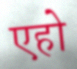
एहो